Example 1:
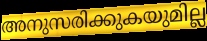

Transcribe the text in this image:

അനുസരിക്കുകയുമില്ല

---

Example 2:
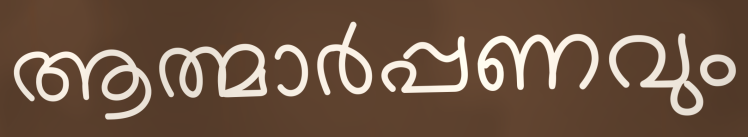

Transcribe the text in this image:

ആത്മാർപ്പണവും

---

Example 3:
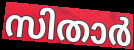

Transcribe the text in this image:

സിതാർ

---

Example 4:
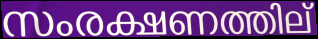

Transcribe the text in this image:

സംരക്ഷണത്തില്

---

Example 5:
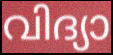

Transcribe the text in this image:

വിദ്യാ